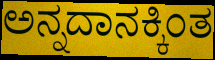
ಅನ್ನದಾನಕ್ಕಿಂತ